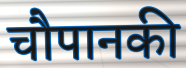
चौपानकी